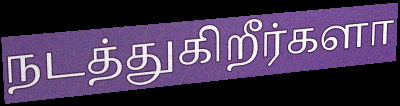
நடத்துகிறீர்களா